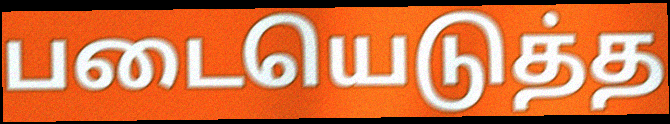
படையெடுத்த